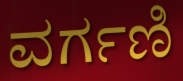
ವರ್ಗಣಿ